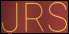
JRS